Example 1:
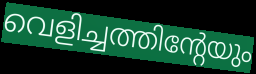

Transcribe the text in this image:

വെളിച്ചത്തിന്റേയും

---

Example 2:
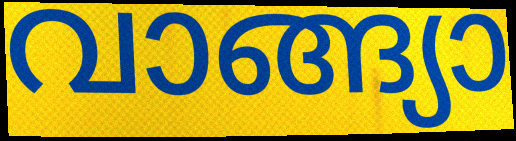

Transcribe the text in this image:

വാങ്ങ്യാ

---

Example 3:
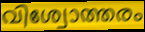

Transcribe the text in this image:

വിശ്വോത്തരം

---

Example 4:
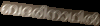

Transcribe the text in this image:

ബദരീനാഥിൽ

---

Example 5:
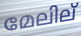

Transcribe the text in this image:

മേലില്